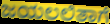
ಜಯಲಲಿತಾಗೆ